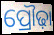
ପ୍ରୌଢ଼ା